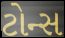
ટોન્સ